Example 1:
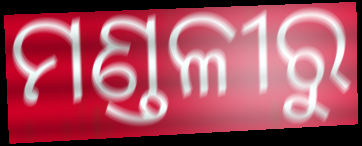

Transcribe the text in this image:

ମଣ୍ଡଳୀରୁ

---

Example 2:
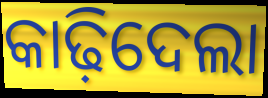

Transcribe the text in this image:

କାଢ଼ିଦେଲା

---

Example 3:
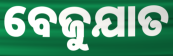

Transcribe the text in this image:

ବେଜୁଯାତ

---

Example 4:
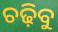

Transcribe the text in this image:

ଚଢ଼ିବୁ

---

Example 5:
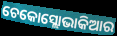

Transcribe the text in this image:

ଚେକୋସ୍ଲୋଭାକିଆର